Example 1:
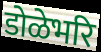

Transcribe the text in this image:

डोळेभरि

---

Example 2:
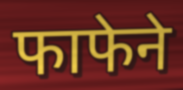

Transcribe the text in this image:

फाफेने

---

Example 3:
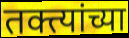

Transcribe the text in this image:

तक्त्यांच्या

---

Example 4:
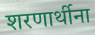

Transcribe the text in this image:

शरणार्थीना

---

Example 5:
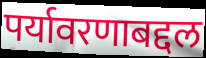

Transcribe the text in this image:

पर्यावरणाबद्दल